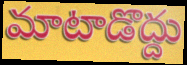
మాటాడొద్దు